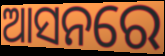
ଆସନରେ